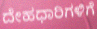
ದೇಹಧಾರಿಗಳಿಗೆ